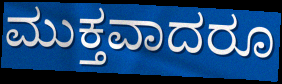
ಮುಕ್ತವಾದರೂ